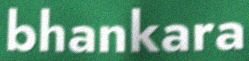
bhankara